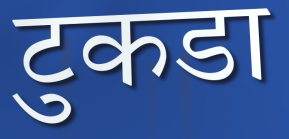
टुकडा